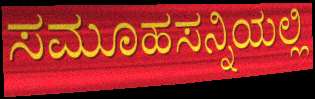
ಸಮೂಹಸನ್ನಿಯಲ್ಲಿ